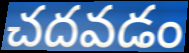
చదవడం